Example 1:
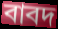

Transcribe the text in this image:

বাবদ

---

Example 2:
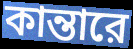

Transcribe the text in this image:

কান্তারে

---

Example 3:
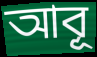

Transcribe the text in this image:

আবূ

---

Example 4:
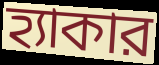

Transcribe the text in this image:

হ্যাকার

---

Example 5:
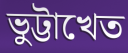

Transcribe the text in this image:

ভুট্টাখেত